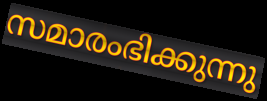
സമാരംഭിക്കുന്നു